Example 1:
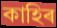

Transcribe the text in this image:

কাহিৰ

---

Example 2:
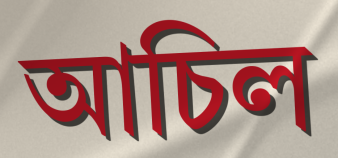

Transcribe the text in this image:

আচিল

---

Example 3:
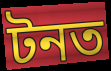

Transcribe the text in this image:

টনত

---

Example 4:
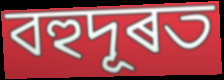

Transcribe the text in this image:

বহুদূৰত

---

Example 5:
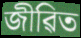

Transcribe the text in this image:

জীৱিত